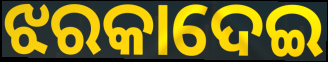
ଝରକାଦେଇ